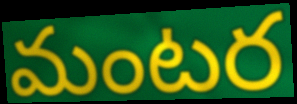
మంటర